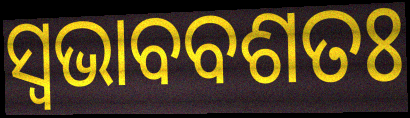
ସ୍ୱଭାବବଶତଃ